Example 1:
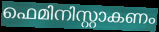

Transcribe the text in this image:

ഫെമിനിസ്റ്റാകണം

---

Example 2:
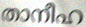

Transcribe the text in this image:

താനീഹ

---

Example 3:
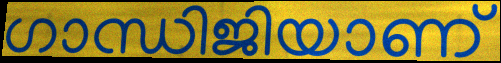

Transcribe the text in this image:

ഗാന്ധിജിയാണ്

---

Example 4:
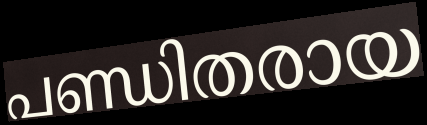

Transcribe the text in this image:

പണ്ഡിതരായ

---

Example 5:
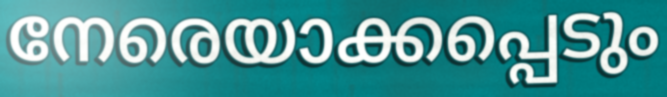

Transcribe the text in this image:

നേരെയാക്കപ്പെടും